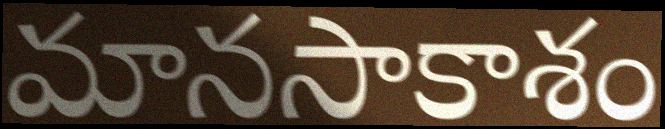
మానసాకాశం